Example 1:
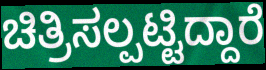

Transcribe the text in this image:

ಚಿತ್ರಿಸಲ್ಪಟ್ಟಿದ್ದಾರೆ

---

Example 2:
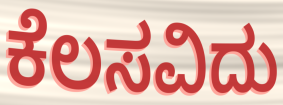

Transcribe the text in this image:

ಕೆಲಸವಿದು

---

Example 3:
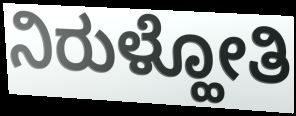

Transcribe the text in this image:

ನಿರುಳ್ಹೋತಿ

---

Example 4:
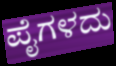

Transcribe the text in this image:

ಪೈಗಳದು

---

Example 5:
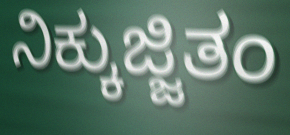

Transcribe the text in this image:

ನಿಕ್ಕುಜ್ಜಿತಂ